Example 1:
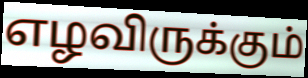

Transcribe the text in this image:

எழவிருக்கும்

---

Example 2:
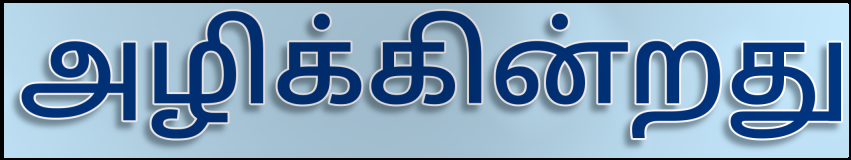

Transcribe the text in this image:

அழிக்கின்றது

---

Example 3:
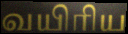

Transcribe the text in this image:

வயிரிய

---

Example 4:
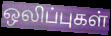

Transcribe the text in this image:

ஒலிப்புகள்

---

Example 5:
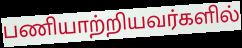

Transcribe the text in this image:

பணியாற்றியவர்களில்